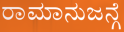
ರಾಮಾನುಜನ್ಗೆ